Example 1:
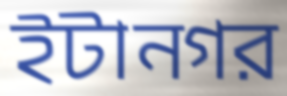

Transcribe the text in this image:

ইটানগর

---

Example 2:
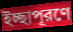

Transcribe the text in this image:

ইচ্ছাপূরণে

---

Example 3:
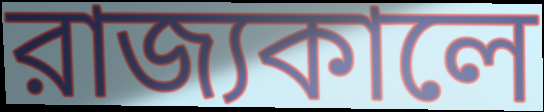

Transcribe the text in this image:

রাজ্যকালে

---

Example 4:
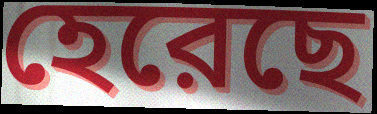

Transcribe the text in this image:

হেরেছে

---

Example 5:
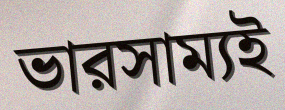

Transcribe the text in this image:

ভারসাম্যই